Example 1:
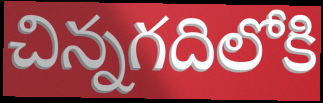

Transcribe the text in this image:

చిన్నగదిలోకి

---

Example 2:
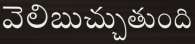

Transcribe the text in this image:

వెలిబుచ్చుతుంది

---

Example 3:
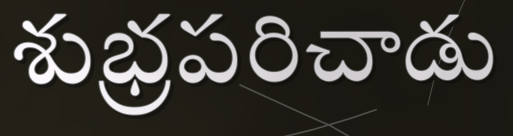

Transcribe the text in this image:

శుభ్రపరిచాడు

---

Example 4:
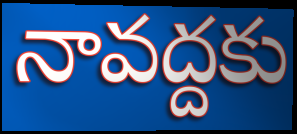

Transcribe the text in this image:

నావద్దకు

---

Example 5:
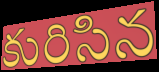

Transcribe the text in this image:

కురిసిన